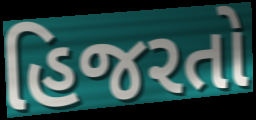
હિજરતો